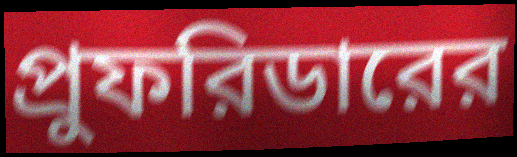
প্রুফরিডারের